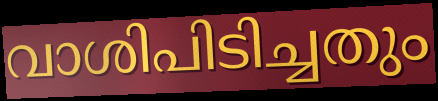
വാശിപിടിച്ചതും